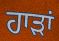
ਹਾੜਾਂ